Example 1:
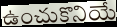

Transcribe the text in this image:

ఉంచుకొనియే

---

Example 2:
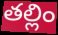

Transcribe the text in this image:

తల్లిం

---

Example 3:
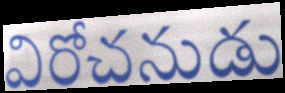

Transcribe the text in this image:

విరోచనుడు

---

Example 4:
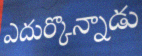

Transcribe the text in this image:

ఎదుర్కొన్నాడు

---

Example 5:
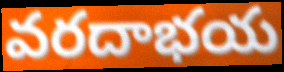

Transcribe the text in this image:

వరదాభయ